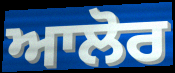
ਆਲੋਰ